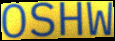
OSHW